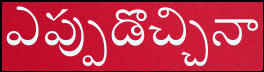
ఎప్పుడొచ్చినా